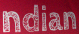
ndian